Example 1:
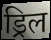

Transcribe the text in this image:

ड्रिल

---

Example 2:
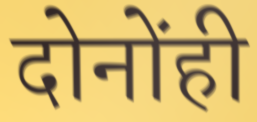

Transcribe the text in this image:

दोनोंही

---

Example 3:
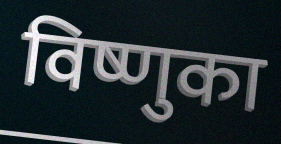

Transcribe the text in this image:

विष्णुका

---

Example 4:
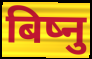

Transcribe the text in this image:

बिष्नु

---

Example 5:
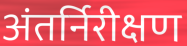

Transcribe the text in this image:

अंतर्निरीक्षण